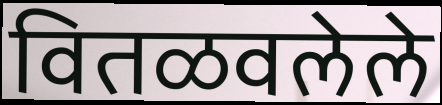
वितळवलेले